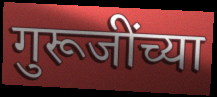
गुरूजींच्या